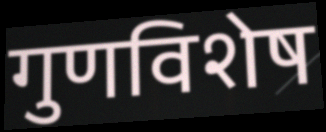
गुणविशेष